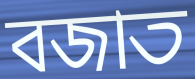
বজাত